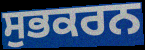
ਸੁਭਕਰਨ